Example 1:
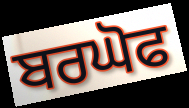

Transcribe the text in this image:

ਬਰਘੋਫ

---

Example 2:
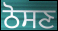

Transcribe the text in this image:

ਠੋਸਣ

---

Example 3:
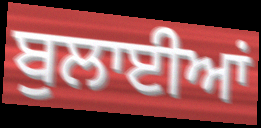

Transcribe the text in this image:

ਬੁਲਾਈਆਂ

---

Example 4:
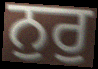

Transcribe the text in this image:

ਨੁਰੁ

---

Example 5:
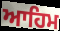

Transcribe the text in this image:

ਆਹਿਮ